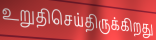
உறுதிசெய்திருக்கிறது